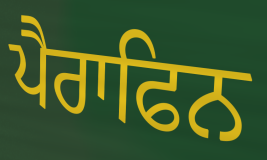
ਪੈਰਾਫਿਨ